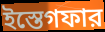
ইস্তেগফার